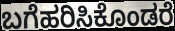
ಬಗೆಹರಿಸಿಕೊಂಡರೆ